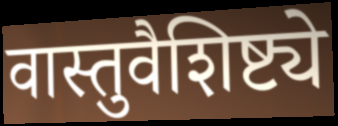
वास्तुवैशिष्ट्ये